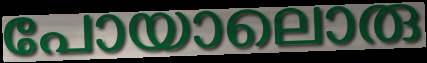
പോയാലൊരു